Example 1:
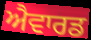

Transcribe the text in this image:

ਐਵਾਰਡ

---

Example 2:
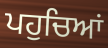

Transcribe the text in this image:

ਪਹੁਚਿਆਂ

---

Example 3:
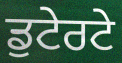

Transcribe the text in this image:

ਡੁਟੇਰਟੇ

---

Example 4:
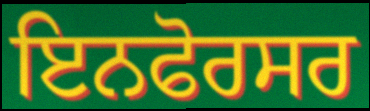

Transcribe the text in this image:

ਇਨਫੋਰਸਰ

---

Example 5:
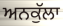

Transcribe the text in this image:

ਅਨਕੁੱਲਾ